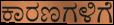
ಕಾರಣಗಳಿಗೆ